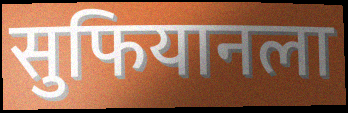
सुफियानला